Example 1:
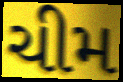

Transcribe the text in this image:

ચીમ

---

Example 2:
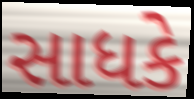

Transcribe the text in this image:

સાધકે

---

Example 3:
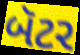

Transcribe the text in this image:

બૅટર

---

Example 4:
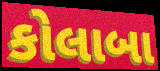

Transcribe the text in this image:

કોલાબા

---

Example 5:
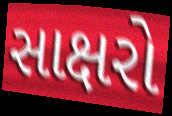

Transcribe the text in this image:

સાક્ષરો